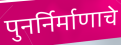
पुनर्निर्माणाचे